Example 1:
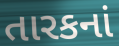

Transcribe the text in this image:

તારકનાં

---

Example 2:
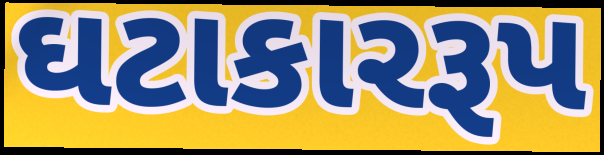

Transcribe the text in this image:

ઘટાકારરૂપ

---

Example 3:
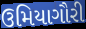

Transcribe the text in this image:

ઉમિયાગૌરી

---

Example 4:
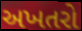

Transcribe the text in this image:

અખતરો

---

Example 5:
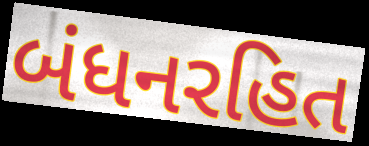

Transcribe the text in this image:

બંધનરહિત